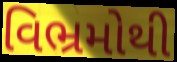
વિભ્રમોથી